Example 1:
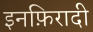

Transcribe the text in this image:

इनफ़िरादी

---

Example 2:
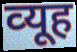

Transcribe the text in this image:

व्‍यूह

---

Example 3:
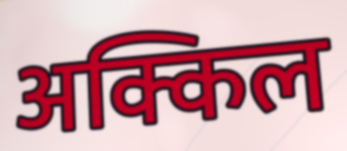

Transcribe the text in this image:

अक्किल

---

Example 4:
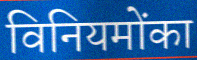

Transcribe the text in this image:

विनियमोंका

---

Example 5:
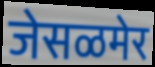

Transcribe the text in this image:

जेसळमेर